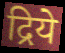
द्रिये